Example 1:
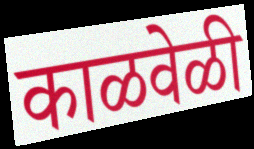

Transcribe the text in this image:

काळवेळी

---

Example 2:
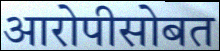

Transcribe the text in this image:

आरोपीसोबत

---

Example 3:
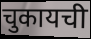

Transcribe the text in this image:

चुकायची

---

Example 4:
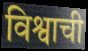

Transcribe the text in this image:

विश्वाची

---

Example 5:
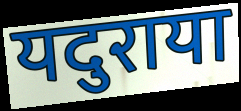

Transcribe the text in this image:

यदुराया